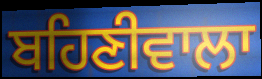
ਬਹਿਣੀਵਾਲਾ